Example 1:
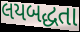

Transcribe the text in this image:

લયબદ્ધતા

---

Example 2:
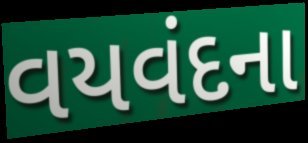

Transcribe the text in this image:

વયવંદના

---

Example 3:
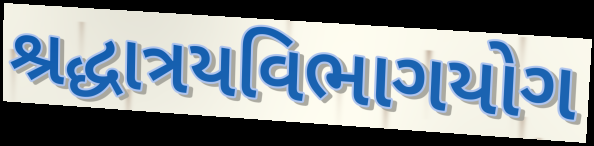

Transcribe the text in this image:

શ્રદ્ધાત્રયવિભાગયોગ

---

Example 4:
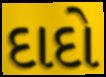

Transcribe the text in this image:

દાદો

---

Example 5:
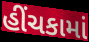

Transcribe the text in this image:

હીંચકામાં